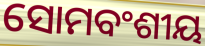
ସୋମବଂଶୀୟ